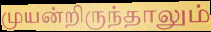
முயன்றிருந்தாலும்